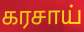
கரசாய்